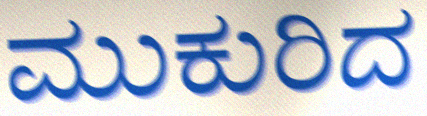
ಮುಕುರಿದ